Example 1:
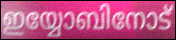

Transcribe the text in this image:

ഇയ്യോബിനോട്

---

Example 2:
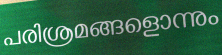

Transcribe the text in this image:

പരിശ്രമങ്ങളൊന്നും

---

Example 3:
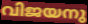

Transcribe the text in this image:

വിജയനു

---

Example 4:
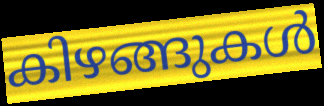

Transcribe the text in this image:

കിഴങ്ങുകൾ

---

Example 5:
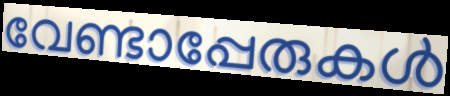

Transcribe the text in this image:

വേണ്ടാപ്പേരുകൾ